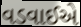
વડવાઈએ